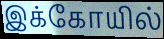
இக்கோயில்